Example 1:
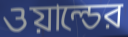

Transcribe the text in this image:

ওয়াল্ডের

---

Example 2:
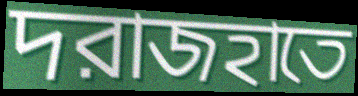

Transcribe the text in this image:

দরাজহাতে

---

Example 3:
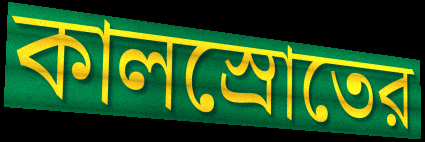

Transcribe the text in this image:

কালস্রোতের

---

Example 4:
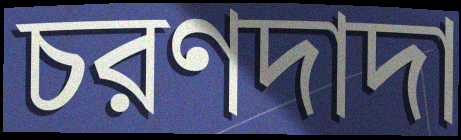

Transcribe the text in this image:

চরণদাদা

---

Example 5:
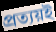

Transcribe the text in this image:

প্রত্যয়ই